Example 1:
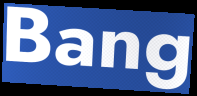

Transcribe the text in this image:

Bang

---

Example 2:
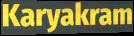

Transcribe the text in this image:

Karyakram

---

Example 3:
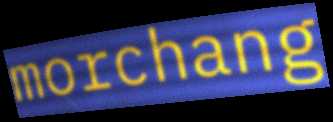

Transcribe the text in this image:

morchang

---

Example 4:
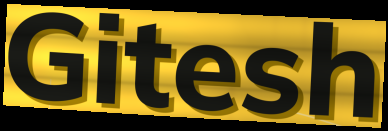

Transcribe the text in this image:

Gitesh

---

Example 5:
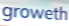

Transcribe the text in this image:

groweth